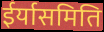
ईर्यासमिति